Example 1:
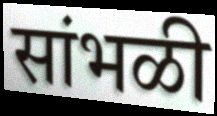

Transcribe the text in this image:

सांभळी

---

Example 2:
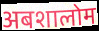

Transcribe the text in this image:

अबशालोम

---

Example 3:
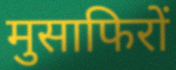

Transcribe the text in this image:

मुसाफिरों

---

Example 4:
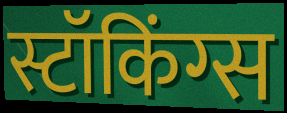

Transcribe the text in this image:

स्टॉकिंग्स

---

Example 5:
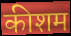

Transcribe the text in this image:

कीशम